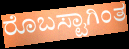
ರೊಬಸ್ಟಾಗಿಂತ